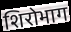
शिरोभाग